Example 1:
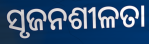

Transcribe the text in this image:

ସୃଜନଶୀଳତା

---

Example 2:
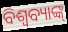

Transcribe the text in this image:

ବିଶ୍ଵବ୍ୟାଙ୍କ୍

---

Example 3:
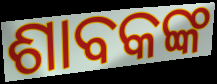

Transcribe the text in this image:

ଶାବକଙ୍କ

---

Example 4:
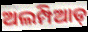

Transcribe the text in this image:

ଅଲମ୍ପିଆଡ୍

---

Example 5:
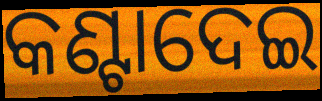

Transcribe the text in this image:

କଣ୍ଟାଦେଇ